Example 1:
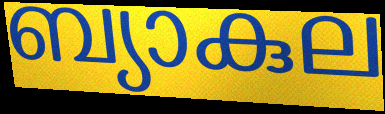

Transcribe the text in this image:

ബ്യാകുല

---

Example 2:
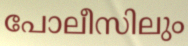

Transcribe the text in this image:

പോലീസിലും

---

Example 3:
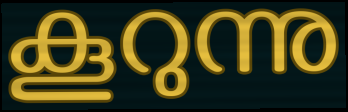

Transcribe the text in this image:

കൂറുന്നു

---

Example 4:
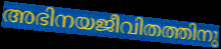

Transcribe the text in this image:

അഭിനയജീവിതത്തിനു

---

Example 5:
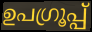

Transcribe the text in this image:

ഉപഗ്രൂപ്പ്